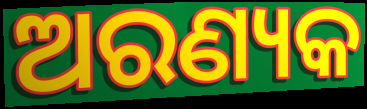
ଅରଣ୍ୟକ